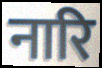
नारि